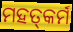
ମହତ୍‌କର୍ମ